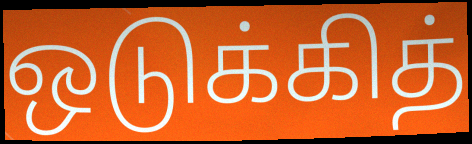
ஒடுக்கித்